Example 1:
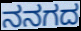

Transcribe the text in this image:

ನನಗದ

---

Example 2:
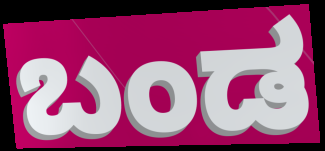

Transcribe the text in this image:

ಬಂಡ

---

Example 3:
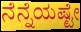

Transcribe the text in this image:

ನೆನ್ನೆಯಷ್ಟೇ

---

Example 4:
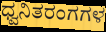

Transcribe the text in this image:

ಧ್ವನಿತರಂಗಗಳ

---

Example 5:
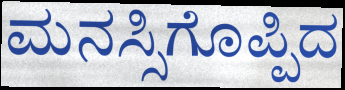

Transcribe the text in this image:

ಮನಸ್ಸಿಗೊಪ್ಪಿದ